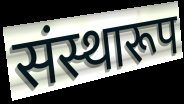
संस्थारूप